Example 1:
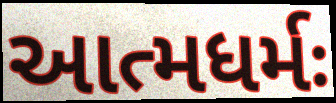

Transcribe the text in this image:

આત્મધર્મઃ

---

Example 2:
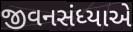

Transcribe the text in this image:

જીવનસંધ્યાએ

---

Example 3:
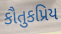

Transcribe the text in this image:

કૌતુકપ્રિય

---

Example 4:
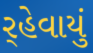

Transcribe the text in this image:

ર્‌હેવાયું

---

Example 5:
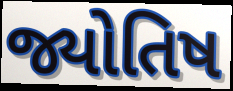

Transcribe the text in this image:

જ્યોતિષ